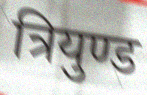
त्रियुण्ड